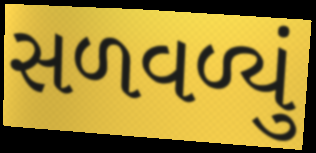
સળવળ્યું